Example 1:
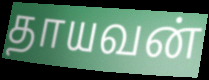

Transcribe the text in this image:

தாயவன்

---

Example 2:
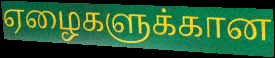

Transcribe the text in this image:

ஏழைகளுக்கான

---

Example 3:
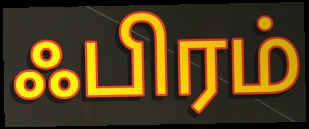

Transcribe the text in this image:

ஃபிரம்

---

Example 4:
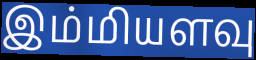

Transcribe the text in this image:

இம்மியளவு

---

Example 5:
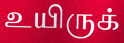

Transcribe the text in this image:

உயிருக்